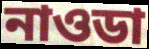
নাওডা